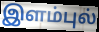
இளம்புல்